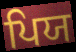
ਪਿਯ